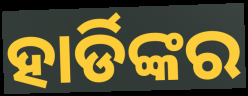
ହାର୍ଡିଙ୍କର